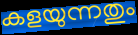
കളയുന്നതും